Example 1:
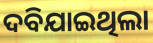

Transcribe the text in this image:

ଦବିଯାଇଥିଲା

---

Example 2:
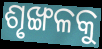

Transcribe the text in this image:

ଶୃଙ୍ଖଳକୁ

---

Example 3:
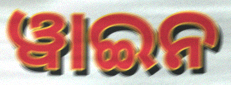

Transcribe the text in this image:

ୱାଇନ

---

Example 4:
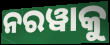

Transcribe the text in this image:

ନରୱାକୁ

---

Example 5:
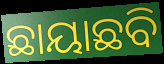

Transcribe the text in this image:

ଛାୟାଛବି